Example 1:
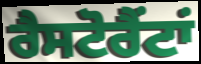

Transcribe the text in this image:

ਰੈਸਟੋਰੈਂਟਾਂ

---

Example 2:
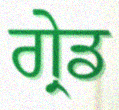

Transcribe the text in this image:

ਗ੍ਰੇਡ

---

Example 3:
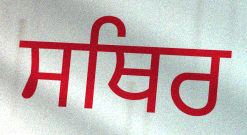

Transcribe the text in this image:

ਸਥਿਰ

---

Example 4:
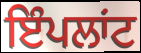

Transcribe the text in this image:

ਇੰਪਲਾਂਟ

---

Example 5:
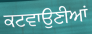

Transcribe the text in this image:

ਕਟਵਾਉਣੀਆਂ